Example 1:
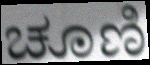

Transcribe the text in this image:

ಚೂಣಿ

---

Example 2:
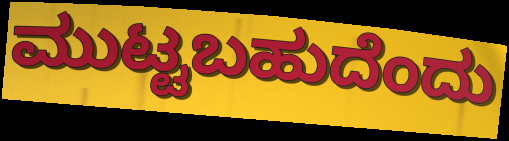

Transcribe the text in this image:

ಮುಟ್ಟಬಹುದೆಂದು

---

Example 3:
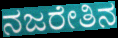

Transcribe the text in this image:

ನಜರೇತಿನ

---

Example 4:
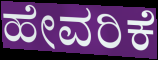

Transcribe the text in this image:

ಹೇವರಿಕೆ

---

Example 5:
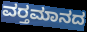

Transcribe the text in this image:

ವರ‍್ತಮಾನದ